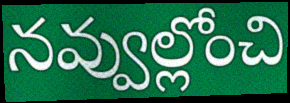
నవ్వుల్లోంచి